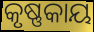
କୃଷ୍ଣକାୟ